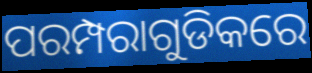
ପରମ୍ପରାଗୁଡିକରେ